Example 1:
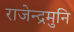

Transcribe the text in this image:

राजेन्द्रमुनि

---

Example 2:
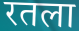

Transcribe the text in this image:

रतला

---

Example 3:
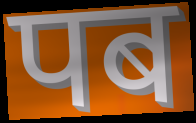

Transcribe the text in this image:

पब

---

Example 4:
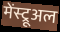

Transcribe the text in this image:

मेंस्ट्रूअल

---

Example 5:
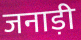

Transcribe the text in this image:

जनाड़ी